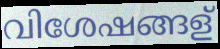
വിശേഷങ്ങള്